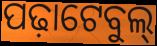
ପଢ଼ାଟେବୁଲ୍